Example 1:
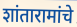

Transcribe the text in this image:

शांतारामांचे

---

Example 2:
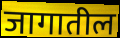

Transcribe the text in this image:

जागातील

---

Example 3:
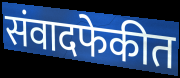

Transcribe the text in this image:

संवादफेकीत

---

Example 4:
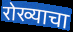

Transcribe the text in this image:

रोख्याचा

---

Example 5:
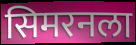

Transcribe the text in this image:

सिमरनला